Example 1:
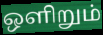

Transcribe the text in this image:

ஒளிறும்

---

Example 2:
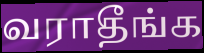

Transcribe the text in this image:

வராதீங்க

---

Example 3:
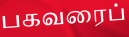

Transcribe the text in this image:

பகவரைப்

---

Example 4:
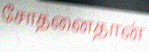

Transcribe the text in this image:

சோதனைதான்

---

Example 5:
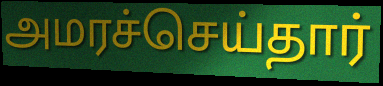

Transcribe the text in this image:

அமரச்செய்தார்